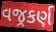
વજ્રકર્ણ